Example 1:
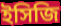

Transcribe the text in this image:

ইসিজি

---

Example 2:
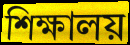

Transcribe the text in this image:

শিক্ষালয়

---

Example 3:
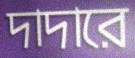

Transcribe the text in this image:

দাদারে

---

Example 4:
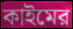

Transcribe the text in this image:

কাইমের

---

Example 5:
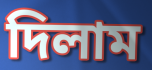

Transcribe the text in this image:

দিলাম